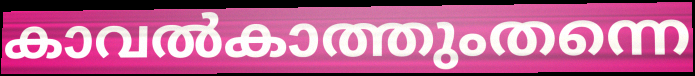
കാവൽകാത്തുംതന്നെ